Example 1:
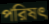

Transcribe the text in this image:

পরিষৎ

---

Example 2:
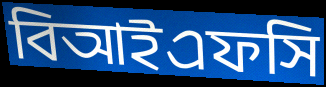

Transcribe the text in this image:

বিআইএফসি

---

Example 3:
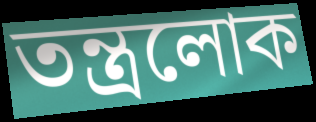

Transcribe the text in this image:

তন্ত্রলোক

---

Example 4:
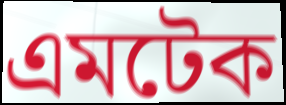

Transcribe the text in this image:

এমটেক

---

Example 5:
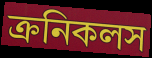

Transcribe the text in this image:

ক্রনিকলস